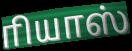
ரியாஸ்